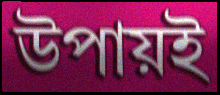
উপায়ই